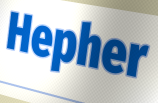
Hepher